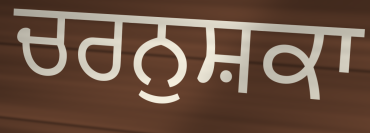
ਚਰਨੁਸ਼ਕਾ